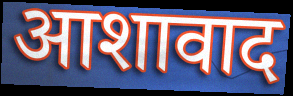
आशावाद